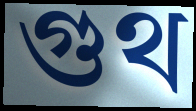
গুথ